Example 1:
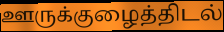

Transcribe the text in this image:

ஊருக்குழைத்திடல்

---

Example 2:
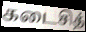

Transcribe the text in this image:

கடைசித்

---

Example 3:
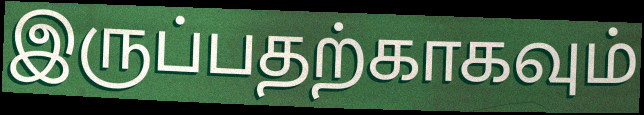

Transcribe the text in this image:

இருப்பதற்காகவும்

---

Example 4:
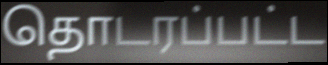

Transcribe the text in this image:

தொடரப்பட்ட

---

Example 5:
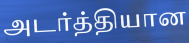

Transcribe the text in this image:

அடர்த்தியான